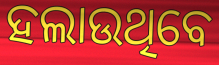
ହଲାଉଥିବେ